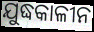
ଯୁଦ୍ଧକାଳୀନ